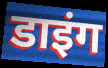
डाइंग